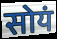
सोयं